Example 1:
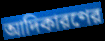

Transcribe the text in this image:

আদিকারণের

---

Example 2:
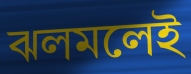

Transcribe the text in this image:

ঝলমলেই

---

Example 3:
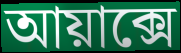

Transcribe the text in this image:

আয়াক্সে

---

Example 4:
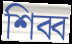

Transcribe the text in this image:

শিব্ব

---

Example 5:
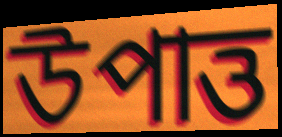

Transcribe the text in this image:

উপাত্ত